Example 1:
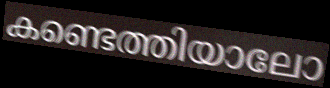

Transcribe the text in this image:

കണ്ടെത്തിയാലോ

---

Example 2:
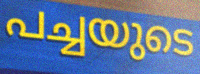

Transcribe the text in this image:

പച്ചയുടെ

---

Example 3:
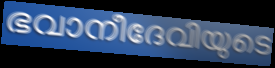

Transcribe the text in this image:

ഭവാനീദേവിയുടെ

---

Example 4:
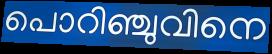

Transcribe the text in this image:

പൊറിഞ്ചുവിനെ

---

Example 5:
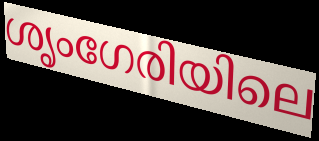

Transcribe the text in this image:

ശൃംഗേരിയിലെ